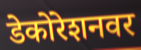
डेकोरेशनवर